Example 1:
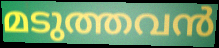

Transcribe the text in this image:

മടുത്തവൻ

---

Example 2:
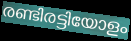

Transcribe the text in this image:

രണ്ടിരട്ടിയോളം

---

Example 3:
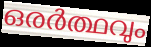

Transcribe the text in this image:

ഒരർത്ഥവും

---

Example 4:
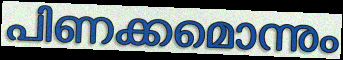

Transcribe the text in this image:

പിണക്കമൊന്നും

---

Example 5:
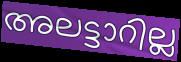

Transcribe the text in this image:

അലട്ടാറില്ല